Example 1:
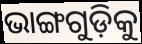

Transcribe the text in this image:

ଭାଙ୍ଗଗୁଡ଼ିକୁ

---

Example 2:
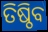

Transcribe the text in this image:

ତିଷ୍ଠିବ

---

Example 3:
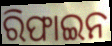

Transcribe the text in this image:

ରିଫାଇନ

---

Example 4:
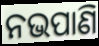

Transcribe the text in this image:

ନଭପାଣି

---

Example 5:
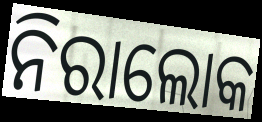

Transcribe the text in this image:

ନିରାଲୋକ